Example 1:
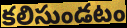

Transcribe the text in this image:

కలిసుండటం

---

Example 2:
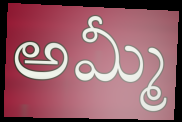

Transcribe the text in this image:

అమ్మీ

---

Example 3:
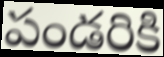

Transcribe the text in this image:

పండరికి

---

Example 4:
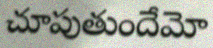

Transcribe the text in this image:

చూపుతుందేమో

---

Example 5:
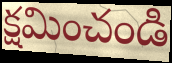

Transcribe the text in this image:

క్షమించండి